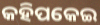
କହିପକେଇ